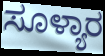
ಸೂಳ್ಯಾರ